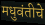
मधुवंतीचे